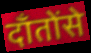
दाँतोंसे